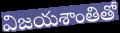
విజయశాంతితో